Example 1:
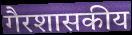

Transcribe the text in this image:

गैरशासकीय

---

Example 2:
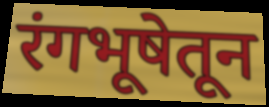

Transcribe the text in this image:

रंगभूषेतून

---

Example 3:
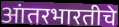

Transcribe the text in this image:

आंतरभारतीचे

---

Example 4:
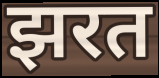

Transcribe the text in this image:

झरत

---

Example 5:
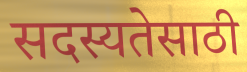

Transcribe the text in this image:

सदस्यतेसाठी